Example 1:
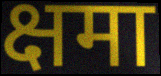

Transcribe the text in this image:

क्षमा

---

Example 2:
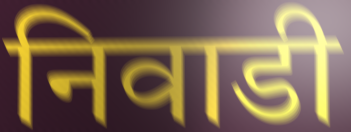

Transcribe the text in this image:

निवाडी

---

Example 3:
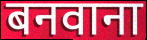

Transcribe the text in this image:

बनवाना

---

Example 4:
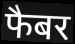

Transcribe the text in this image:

फैबर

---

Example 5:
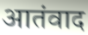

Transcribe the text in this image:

आतंवाद